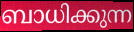
ബാധിക്കുന്ന